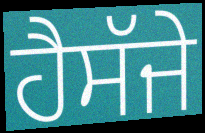
ਹੈਸੱਜੇ